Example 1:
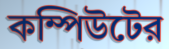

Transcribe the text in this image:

কম্পিউটের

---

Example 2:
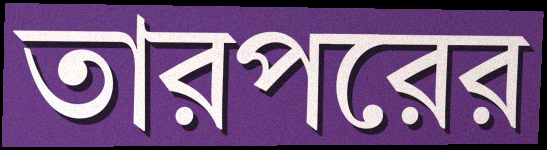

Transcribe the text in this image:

তারপরের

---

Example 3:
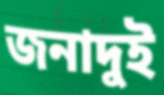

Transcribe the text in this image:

জনাদুই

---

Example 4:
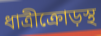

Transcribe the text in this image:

ধাত্রীক্রোড়স্থ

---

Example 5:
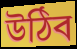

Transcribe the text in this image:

উঠিব